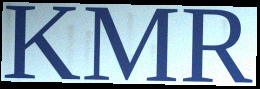
KMR